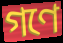
গণে